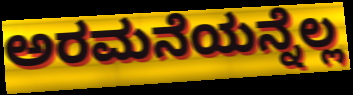
ಅರಮನೆಯನ್ನೆಲ್ಲ